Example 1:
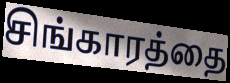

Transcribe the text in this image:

சிங்காரத்தை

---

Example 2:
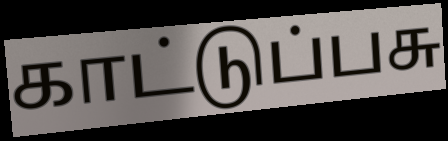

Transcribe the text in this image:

காட்டுப்பசு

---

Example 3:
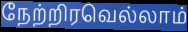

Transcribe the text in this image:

நேற்றிரவெல்லாம்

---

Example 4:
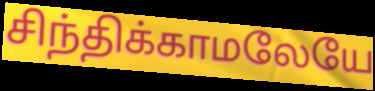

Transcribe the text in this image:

சிந்திக்காமலேயே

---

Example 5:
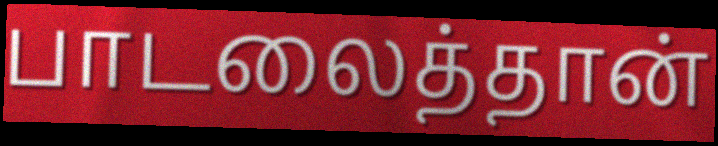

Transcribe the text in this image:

பாடலைத்தான்